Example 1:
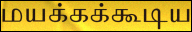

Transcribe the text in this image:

மயக்கக்கூடிய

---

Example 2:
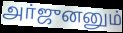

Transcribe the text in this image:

அர்ஜுனனும்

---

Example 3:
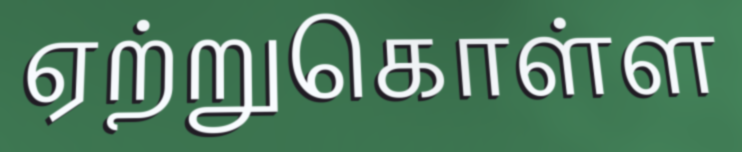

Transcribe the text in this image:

ஏற்றுகொள்ள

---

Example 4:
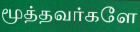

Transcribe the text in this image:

மூத்தவர்களே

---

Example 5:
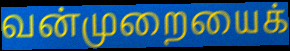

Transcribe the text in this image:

வன்முறையைக்